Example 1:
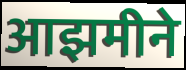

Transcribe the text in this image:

आझमीने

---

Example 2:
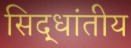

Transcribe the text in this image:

सिद्धांतीय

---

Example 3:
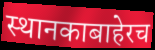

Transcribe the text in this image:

स्थानकाबाहेरच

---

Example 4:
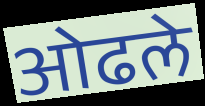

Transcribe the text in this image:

ओढले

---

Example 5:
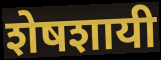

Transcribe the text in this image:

शेषशायी